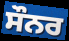
ਸੌਨਰ